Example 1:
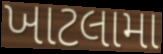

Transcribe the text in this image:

ખાટલામા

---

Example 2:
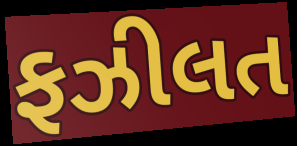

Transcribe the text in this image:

ફઝીલત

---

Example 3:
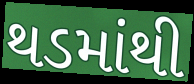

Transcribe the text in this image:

થડમાંથી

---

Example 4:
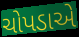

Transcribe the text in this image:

ચોપડાએ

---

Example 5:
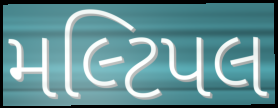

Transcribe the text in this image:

મલ્ટિપલ